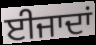
ਈਜਾਦਾਂ